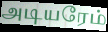
அடியரேம்